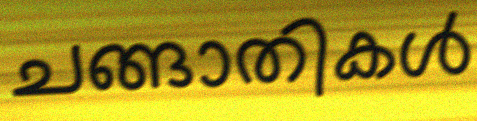
ചങ്ങാതികൾ